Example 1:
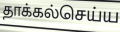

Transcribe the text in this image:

தாக்கல்செய்ய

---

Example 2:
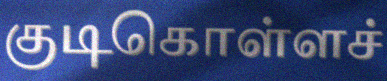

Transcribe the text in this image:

குடிகொள்ளச்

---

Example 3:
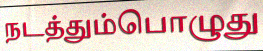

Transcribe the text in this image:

நடத்தும்பொழுது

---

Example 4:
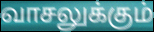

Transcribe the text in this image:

வாசலுக்கும்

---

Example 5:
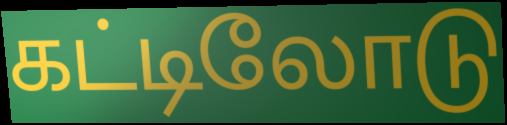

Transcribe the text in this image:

கட்டிலோடு